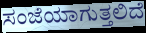
ಸಂಜೆಯಾಗುತ್ತಲಿದೆ